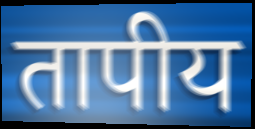
तापीय